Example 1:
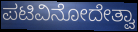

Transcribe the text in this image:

ಪಟಿವಿನೋದೇತ್ವಾ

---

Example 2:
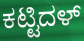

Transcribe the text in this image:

ಕಟ್ಟಿದಳ್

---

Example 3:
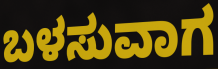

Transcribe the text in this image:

ಬಳಸುವಾಗ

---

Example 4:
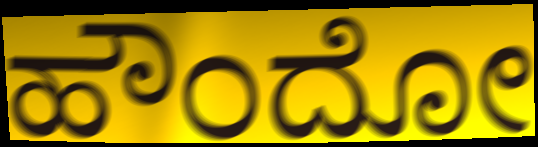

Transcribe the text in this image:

ಹೌಂದೋ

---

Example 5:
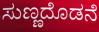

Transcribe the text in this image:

ಸುಣ್ಣದೊಡನೆ